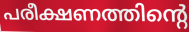
പരീക്ഷണത്തിന്റെ